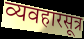
व्यवहारसूत्र